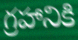
గ్రహానికి